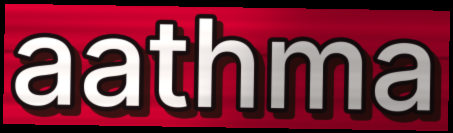
aathma